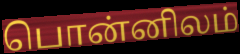
பொன்னிலம்